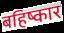
बहिष्कार